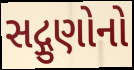
સદ્ગુણોનો